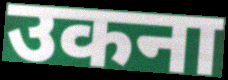
उकना